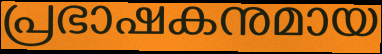
പ്രഭാഷകനുമായ